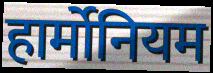
हार्मोनियम